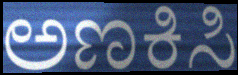
ಅಣಕಿಸಿ